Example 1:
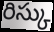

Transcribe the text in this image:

రిస్కు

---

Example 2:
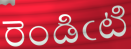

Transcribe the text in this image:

రెండిఁటి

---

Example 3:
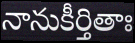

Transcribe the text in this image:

నానుకీర్తితాః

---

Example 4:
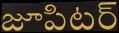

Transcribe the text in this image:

జూపిటర్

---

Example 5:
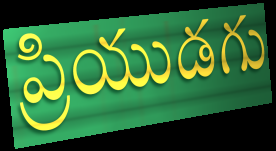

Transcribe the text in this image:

ప్రియుడగు